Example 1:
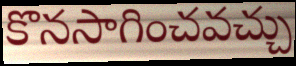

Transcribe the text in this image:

కొనసాగించవచ్చు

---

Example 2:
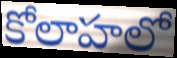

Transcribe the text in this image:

కోలాహలో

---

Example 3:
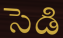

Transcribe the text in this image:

సెడి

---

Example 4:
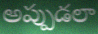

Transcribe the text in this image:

అప్పుడలా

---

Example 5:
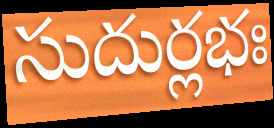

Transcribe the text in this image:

సుదుర్లభః